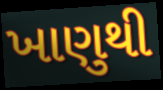
ખાણુથી